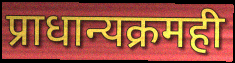
प्राधान्यक्रमही